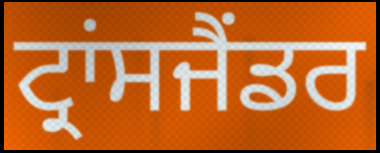
ਟ੍ਰਾਂਸਜੈਂਡਰ